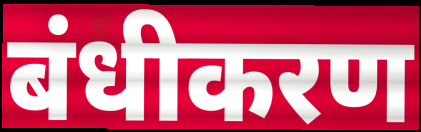
बंधीकरण